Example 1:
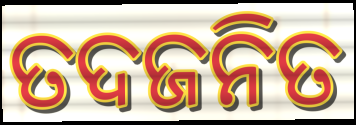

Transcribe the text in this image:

ତଦଜନିତ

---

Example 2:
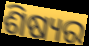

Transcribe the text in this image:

ଶିଷ୍ୟର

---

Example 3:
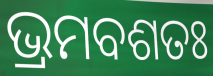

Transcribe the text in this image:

ଭ୍ରମବଶତଃ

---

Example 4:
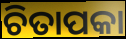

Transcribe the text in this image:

ଚିତାପକା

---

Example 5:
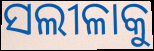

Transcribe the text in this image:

ସଲୀଳାକୁ